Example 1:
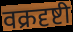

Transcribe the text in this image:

वक्रदृष्टी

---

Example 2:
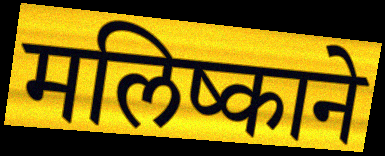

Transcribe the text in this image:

मलिष्काने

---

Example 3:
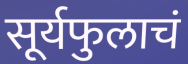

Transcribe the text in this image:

सूर्यफुलाचं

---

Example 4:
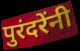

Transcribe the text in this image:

पुरंदरेंनी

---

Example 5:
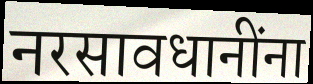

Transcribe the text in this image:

नरसावधानींना